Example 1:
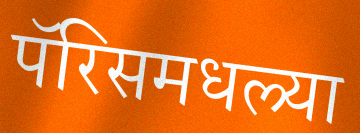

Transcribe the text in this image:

पॅरिसमधल्या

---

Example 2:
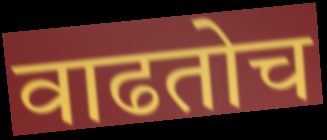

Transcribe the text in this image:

वाढतोच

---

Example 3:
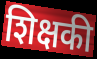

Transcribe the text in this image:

शिक्षकी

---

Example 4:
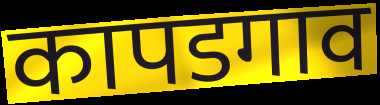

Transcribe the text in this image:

कापडगाव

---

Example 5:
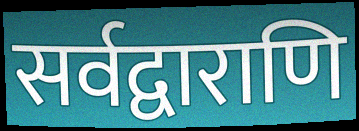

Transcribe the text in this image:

सर्वद्वाराणि